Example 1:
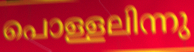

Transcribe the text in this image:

പൊള്ളലിന്നു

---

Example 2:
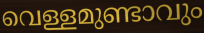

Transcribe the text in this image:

വെള്ളമുണ്ടാവും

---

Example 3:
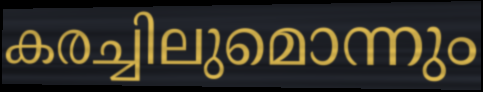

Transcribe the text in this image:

കരച്ചിലുമൊന്നും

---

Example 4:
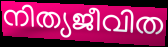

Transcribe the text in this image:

നിത്യജീവിത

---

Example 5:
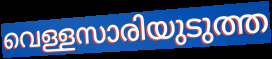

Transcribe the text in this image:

വെള്ളസാരിയുടുത്ത